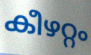
കീഴറ്റം